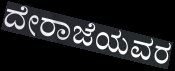
ದೇರಾಜೆಯವರ